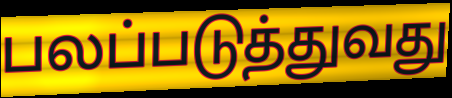
பலப்படுத்துவது